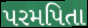
પરમપિતા